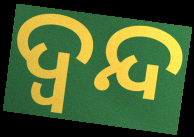
ଦ୍ବନ୍ଦ